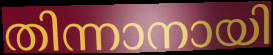
തിന്നാനായി